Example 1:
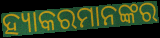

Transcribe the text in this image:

ହ୍ୟାକରମାନଙ୍କର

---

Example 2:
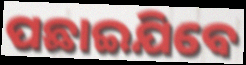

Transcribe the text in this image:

ପଛାଇଯିବେ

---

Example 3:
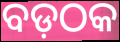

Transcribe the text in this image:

ବଡ଼ଠକ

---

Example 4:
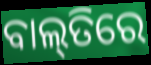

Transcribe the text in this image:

ବାଲ୍‌ତିରେ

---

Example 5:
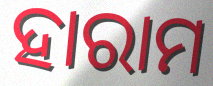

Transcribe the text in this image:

ହାରାମ